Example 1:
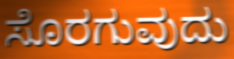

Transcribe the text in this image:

ಸೊರಗುವುದು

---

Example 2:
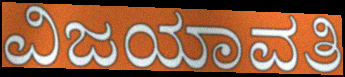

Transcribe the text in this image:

ವಿಜಯಾವತಿ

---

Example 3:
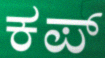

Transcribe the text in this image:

ಕಪ್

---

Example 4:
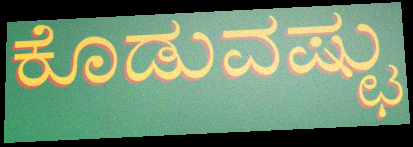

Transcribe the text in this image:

ಕೊಡುವಷ್ಟು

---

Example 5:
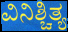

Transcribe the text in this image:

ವಿನಿಶ್ಚಿತ್ಯ